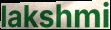
lakshmi